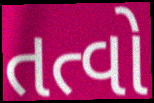
તત્વો